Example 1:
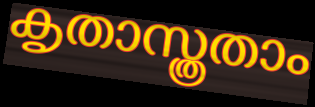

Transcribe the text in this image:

കൃതാസ്ത്രതാം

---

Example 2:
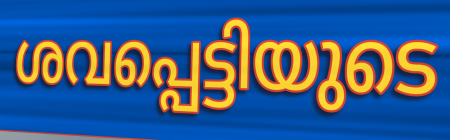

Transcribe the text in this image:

ശവപ്പെട്ടിയുടെ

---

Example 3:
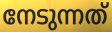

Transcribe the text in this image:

നേടുന്നത്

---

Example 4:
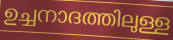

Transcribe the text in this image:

ഉച്ചനാദത്തിലുള്ള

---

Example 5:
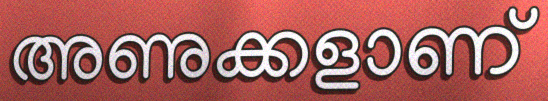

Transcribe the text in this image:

അണുക്കളാണ്